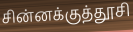
சின்னக்குத்தூசி